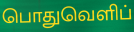
பொதுவெளிப்